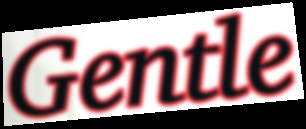
Gentle